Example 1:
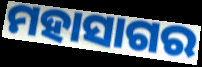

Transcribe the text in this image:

ମହାସାଗର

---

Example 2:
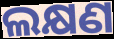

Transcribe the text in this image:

ଲକ୍ଷଣ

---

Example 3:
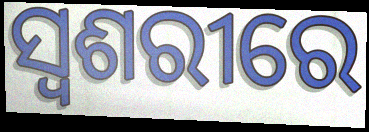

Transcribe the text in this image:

ସ୍ୱଶରୀରେ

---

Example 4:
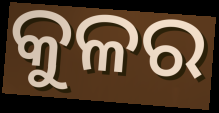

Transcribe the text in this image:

କୁଳର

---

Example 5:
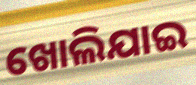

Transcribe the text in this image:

ଖୋଲିଯାଇ